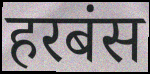
हरबंस